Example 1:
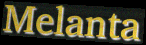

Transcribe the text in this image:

Melanta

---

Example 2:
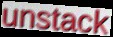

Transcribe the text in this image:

unstack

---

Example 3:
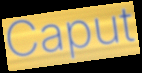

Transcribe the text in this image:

Caput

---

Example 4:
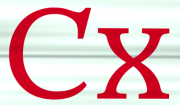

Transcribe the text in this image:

Cx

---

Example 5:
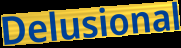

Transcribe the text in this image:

Delusional